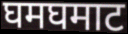
घमघमाट